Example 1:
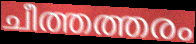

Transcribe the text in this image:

ചീത്തത്തരം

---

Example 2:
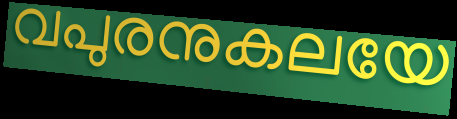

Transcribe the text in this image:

വപുരനുകലയേ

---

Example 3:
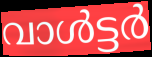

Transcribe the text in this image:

വാൾട്ടർ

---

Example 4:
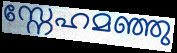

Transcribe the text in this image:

സ്നേഹമഞ്ഞു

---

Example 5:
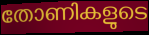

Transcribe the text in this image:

തോണികളുടെ